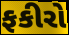
ફકીરો